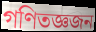
গণিতজ্ঞজন